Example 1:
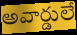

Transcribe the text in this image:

అవార్డులే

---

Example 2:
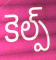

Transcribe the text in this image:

కెల్ప్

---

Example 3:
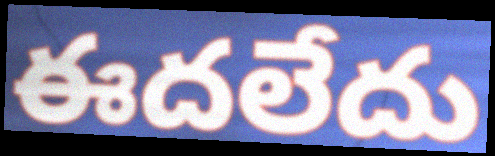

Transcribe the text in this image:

ఈదలేదు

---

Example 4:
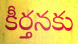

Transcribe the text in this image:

కీర్తనకు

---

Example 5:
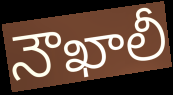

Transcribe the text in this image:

నౌఖాలీ